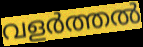
വളർത്തൽ